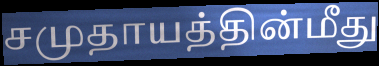
சமுதாயத்தின்மீது